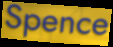
Spence